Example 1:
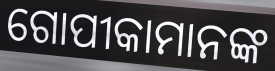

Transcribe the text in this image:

ଗୋପୀକାମାନଙ୍କ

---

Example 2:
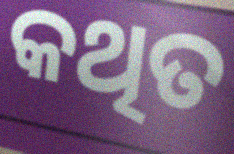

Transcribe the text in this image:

କଥିତ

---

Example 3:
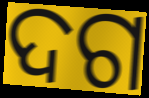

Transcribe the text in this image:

ଦଗ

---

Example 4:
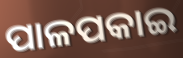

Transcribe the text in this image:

ପାଳପକାଇ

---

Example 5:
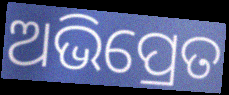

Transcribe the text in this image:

ଅଭିପ୍ରେତ